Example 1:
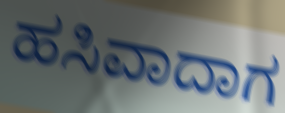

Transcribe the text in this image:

ಹಸಿವಾದಾಗ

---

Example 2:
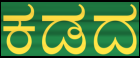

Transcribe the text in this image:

ಕಡದ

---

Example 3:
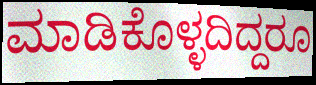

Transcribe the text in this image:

ಮಾಡಿಕೊಳ್ಳದಿದ್ದರೂ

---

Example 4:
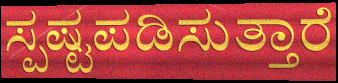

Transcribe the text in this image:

ಸ್ಪಷ್ಟಪಡಿಸುತ್ತಾರೆ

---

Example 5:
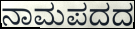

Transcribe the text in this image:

ನಾಮಪದದ